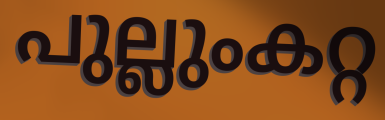
പുല്ലുംകറ്റ